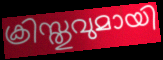
ക്രിസ്തുവുമായി